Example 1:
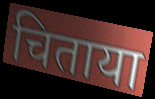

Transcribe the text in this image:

चिताया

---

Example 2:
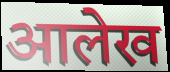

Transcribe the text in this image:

आलेख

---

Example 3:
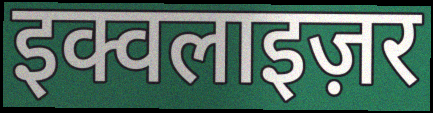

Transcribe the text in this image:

इक्वलाइज़र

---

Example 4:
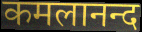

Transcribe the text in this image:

कमलानन्द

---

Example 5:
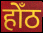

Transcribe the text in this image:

होँठ